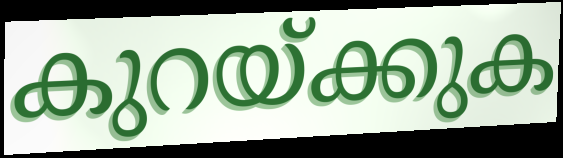
കുറയ്ക്കുക